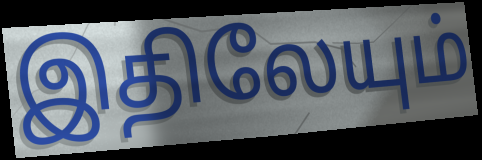
இதிலேயும்